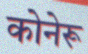
कोनेरू